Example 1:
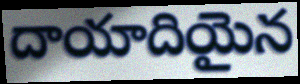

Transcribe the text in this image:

దాయాదియైన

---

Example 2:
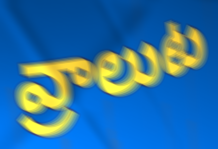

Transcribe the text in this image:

వ్రాలుట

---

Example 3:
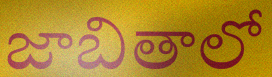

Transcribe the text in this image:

జాబితాలో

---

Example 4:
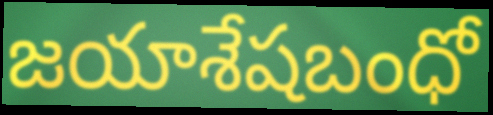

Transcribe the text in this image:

జయాశేషబంధో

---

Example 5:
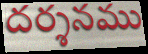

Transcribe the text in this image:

దర్శనము